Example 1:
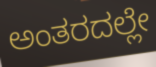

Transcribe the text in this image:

ಅಂತರದಲ್ಲೇ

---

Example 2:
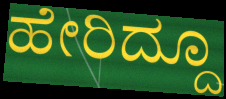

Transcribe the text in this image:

ಹೇರಿದ್ದೂ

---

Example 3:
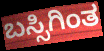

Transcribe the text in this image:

ಬಸ್ಸಿಗಿಂತ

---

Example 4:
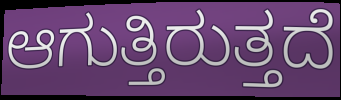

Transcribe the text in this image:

ಆಗುತ್ತಿರುತ್ತದೆ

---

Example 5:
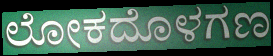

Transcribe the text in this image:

ಲೋಕದೊಳಗಣ